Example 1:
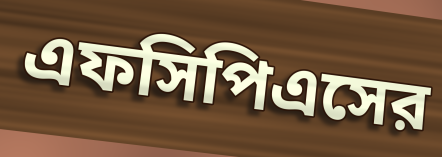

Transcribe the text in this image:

এফসিপিএসের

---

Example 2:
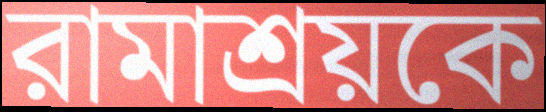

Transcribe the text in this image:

রামাশ্রয়কে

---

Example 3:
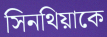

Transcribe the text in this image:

সিনথিয়াকে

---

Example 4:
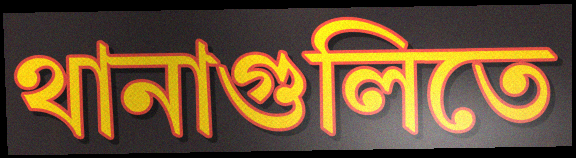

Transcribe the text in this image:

থানাগুলিতে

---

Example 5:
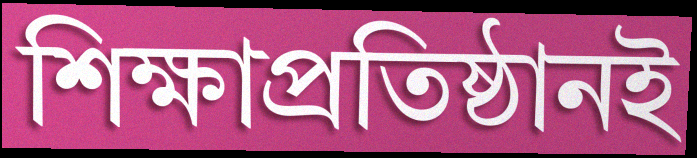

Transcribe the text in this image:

শিক্ষাপ্রতিষ্ঠানই